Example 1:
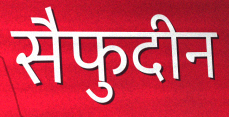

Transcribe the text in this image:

सैफुदीन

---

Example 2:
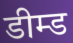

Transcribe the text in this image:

डीम्ड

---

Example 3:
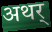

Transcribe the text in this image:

अथर्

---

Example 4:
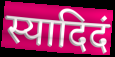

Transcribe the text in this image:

स्यादिदं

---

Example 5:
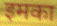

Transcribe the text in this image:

इमका